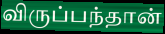
விருப்பந்தான்